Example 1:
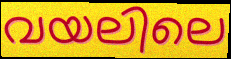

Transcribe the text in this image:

വയലിലെ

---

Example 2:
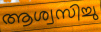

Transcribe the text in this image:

ആശ്വസിച്ചു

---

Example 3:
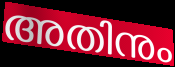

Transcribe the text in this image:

അതിനും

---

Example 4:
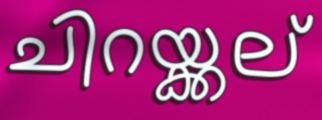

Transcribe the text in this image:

ചിറയ്ക്കല്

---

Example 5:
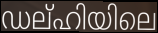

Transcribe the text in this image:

ഡല്ഹിയിലെ